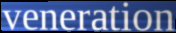
veneration